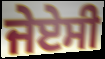
ਜੇਏਸੀ